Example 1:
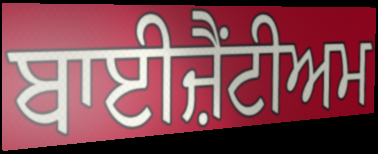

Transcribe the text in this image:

ਬਾਈਜ਼ੈਂਟੀਅਮ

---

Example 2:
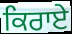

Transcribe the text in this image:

ਕਿਰਾਏ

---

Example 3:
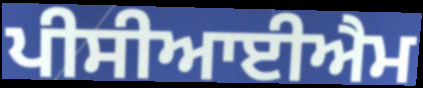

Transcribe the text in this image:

ਪੀਸੀਆਈਐਮ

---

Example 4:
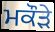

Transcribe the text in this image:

ਮਕੌੜੇ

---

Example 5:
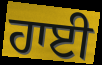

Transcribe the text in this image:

ਹਾਈ